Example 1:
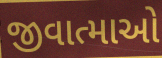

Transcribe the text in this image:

જીવાત્માઓ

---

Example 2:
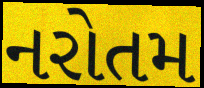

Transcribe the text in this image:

નરોતમ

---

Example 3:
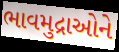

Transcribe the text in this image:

ભાવમુદ્રાઓને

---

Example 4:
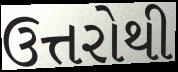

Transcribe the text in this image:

ઉત્તરોથી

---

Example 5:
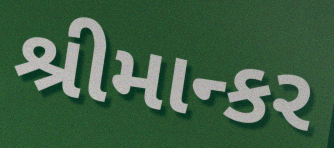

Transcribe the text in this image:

શ્રીમાન્કર